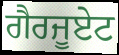
ਗੈਰਜੂਏਟ